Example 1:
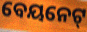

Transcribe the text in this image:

ବେୟନେଟ୍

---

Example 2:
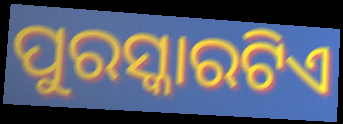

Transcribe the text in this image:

ପୁରସ୍କାରଟିଏ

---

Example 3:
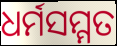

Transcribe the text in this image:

ଧର୍ମସମ୍ମତ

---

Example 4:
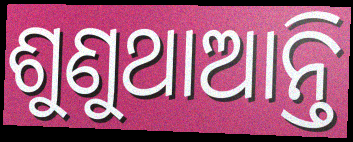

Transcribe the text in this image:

ଶୁଣୁଥାଆନ୍ତି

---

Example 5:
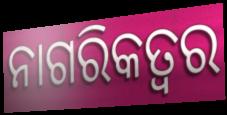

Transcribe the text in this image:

ନାଗରିକତ୍ୱର